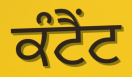
ਕੰਟੈਂਟ